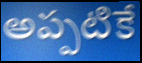
అప్పటికే